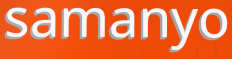
samanyo